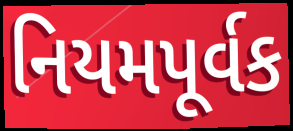
નિયમપૂર્વક